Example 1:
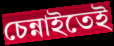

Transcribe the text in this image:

চেন্নাইতেই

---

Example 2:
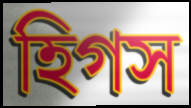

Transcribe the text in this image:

হিগস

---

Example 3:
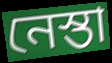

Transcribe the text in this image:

নেস্তা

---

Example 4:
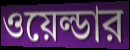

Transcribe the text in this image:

ওয়েল্ডার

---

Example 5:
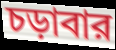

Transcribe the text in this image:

চড়াবার